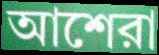
আশেরা